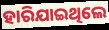
ହାରିଯାଇଥିଲେ